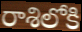
రాశిలోకి